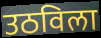
उठविला